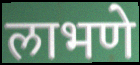
लाभणे